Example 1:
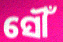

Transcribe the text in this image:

ସୌଁ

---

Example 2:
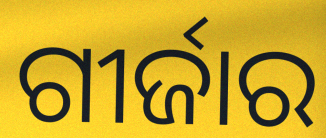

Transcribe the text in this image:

ଗୀର୍ଜାର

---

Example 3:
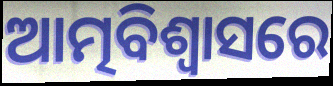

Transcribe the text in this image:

ଆତ୍ମବିଶ୍ଵାସରେ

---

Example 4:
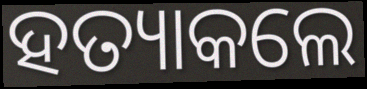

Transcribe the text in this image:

ହତ୍ୟାକଲେ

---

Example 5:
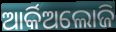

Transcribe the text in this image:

ଆର୍କିଅଲୋଜି